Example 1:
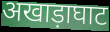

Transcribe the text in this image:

अखाड़ाघाट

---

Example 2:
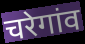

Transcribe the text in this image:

चरेगांव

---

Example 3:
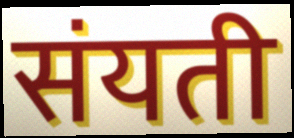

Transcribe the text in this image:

संयती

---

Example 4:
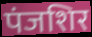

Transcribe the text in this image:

पंजशिर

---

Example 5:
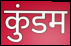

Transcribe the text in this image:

कुंडम